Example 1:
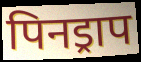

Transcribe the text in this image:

पिनड्राप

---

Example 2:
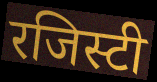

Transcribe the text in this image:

रजिस्टी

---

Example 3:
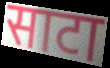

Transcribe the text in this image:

साटा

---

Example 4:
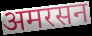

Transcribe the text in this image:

अमरसन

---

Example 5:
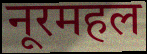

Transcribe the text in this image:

नूरमहल